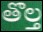
తొల్త